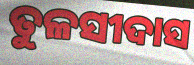
ତୁଳସୀଦାସ